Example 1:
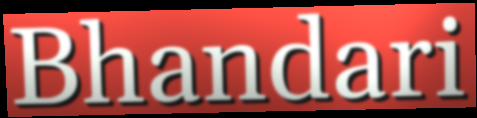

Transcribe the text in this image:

Bhandari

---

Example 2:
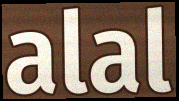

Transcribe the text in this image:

alal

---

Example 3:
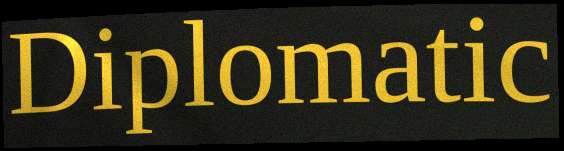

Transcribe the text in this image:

Diplomatic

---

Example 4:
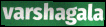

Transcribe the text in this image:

varshagala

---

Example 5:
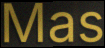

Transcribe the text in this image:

Mas